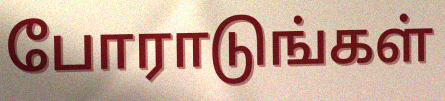
போராடுங்கள்